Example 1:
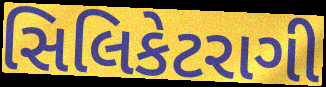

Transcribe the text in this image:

સિલિકેટરાગી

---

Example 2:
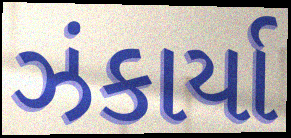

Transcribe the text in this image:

ઝંકાર્યા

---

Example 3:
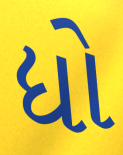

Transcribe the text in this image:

દ્યો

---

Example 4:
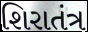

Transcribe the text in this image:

શિરાતંત્ર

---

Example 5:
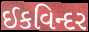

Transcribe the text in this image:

ઈકવિન્દર